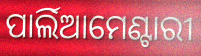
ପାର୍ଲିଆମେଣ୍ଟାରୀ